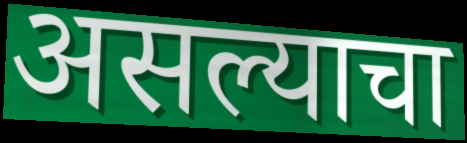
असल्‍याचा